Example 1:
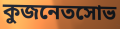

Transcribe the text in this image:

কুজনেতসোভ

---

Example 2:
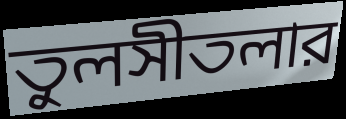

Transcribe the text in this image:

তুলসীতলার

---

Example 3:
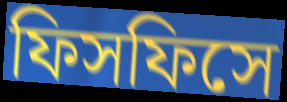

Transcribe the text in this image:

ফিসফিসে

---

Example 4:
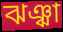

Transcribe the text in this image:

ঝঞ্ঝা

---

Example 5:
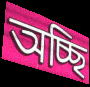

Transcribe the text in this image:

অচ্ছি